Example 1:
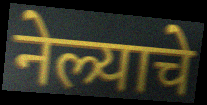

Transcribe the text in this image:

नेल्याचे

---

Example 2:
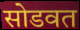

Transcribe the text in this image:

सोडवत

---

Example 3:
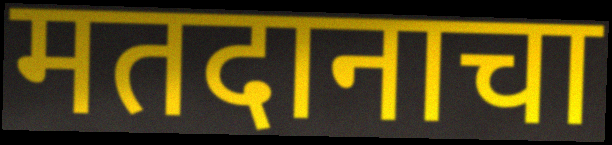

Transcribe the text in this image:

मतदानाचा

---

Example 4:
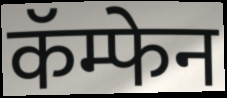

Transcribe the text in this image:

कॅम्फेन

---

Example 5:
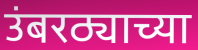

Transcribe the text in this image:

उंबरठ्याच्या